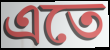
এতে